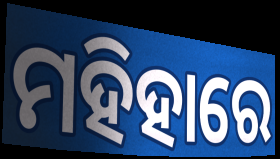
ମହିହାରେ